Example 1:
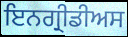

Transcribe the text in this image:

ਇਨਗ੍ਰੀਡੀਅਸ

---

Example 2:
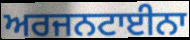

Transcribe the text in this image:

ਅਰਜਨਟਾਈਨਾ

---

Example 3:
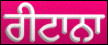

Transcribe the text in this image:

ਰੀਟਾਨਾ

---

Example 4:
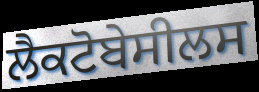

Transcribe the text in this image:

ਲੈਕਟੋਬੇਸੀਲਸ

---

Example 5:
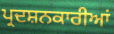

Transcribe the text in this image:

ਪ੍ਰਦਸ਼ਨਕਾਰੀਆਂ